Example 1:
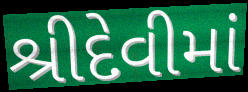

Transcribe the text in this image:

શ્રીદેવીમાં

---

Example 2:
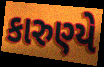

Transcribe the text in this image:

કારુણ્યે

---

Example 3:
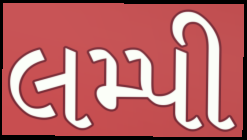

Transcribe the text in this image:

લમ્પી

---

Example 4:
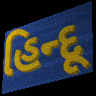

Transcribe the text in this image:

હિન્દૂ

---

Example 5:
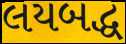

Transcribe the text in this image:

લયબદ્ધ